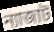
ন্যাজাট